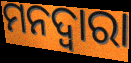
ମନଦ୍ଵାରା